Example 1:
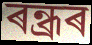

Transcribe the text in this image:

ৰন্ধ্ৰৰ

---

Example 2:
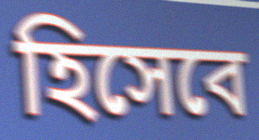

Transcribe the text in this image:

হিসেবে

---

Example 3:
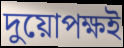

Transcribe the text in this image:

দুয়োপক্ষই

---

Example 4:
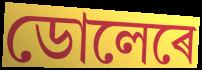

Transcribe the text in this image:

ডোলেৰে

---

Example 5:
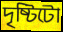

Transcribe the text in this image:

দৃষ্টিটো